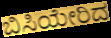
ಬಿಸಿಯೇರಿದ